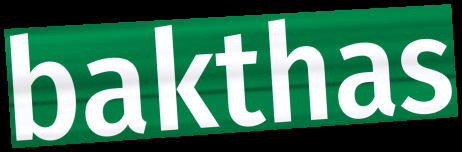
bakthas